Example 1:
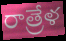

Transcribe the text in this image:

రాత్రేళ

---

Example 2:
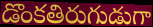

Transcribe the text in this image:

డొంకతిరుగుడుగా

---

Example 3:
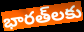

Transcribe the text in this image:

భారత్‌లకు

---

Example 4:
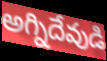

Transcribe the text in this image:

అగ్నిదేవుడి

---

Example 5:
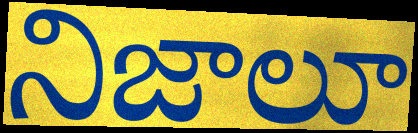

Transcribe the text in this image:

నిజాలూ